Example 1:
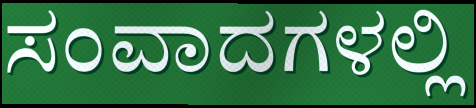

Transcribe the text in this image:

ಸಂವಾದಗಳಲ್ಲಿ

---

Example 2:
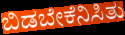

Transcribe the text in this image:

ಬಿಡಬೇಕೆನಿಸಿತು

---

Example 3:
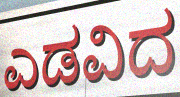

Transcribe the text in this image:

ಎಡವಿದ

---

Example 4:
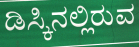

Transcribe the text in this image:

ಡಿಸ್ಕಿನಲ್ಲಿರುವ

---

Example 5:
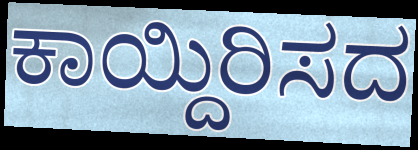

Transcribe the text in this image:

ಕಾಯ್ದಿರಿಸದ